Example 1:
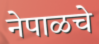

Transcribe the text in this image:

नेपाळचे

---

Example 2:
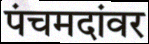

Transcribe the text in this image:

पंचमदांवर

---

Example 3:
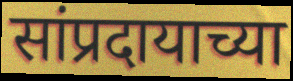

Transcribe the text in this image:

सांप्रदायाच्या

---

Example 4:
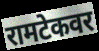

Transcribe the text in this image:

रामटेकवर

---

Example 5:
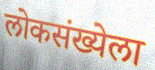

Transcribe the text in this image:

लोकसंख्येला